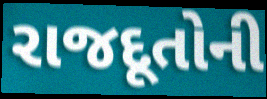
રાજદૂતોની